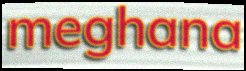
meghana